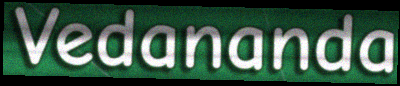
Vedananda